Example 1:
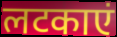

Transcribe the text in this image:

लटकाएं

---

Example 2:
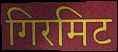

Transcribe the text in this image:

गिरमिट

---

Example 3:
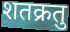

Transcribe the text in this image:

शतक्रतु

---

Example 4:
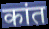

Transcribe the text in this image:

कांत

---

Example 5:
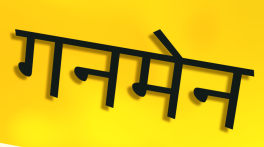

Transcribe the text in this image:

गनमेन